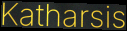
Katharsis